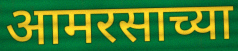
आमरसाच्या